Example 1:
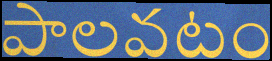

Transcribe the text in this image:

పాలవటం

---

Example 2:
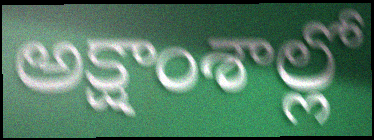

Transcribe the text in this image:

అక్షాంశాల్లో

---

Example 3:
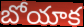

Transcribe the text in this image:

బోయాక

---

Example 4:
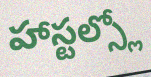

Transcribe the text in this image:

హాస్టల్స్లో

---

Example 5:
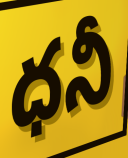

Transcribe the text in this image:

ధనీ